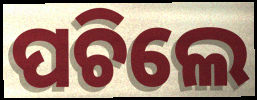
ପଚିଲେ